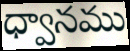
ధ్వానము